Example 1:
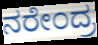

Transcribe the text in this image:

ನರೇಂದ್ರ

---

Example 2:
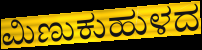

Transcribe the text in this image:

ಮಿಣುಕುಹುಳದ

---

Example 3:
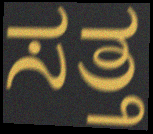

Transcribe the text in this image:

ಸತ್ತ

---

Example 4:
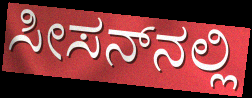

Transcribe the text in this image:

ಸೀಸನ್‌ನಲ್ಲಿ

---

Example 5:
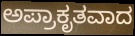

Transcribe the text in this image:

ಅಪ್ರಾಕೃತವಾದ